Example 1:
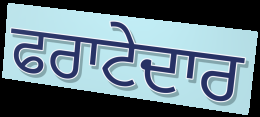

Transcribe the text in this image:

ਫਰਾਟੇਦਾਰ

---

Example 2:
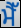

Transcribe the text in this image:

ਮੈੱ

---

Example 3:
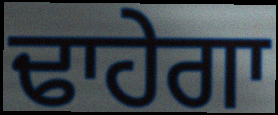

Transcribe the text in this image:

ਢਾਹੇਗਾ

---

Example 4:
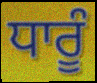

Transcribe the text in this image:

ਧਾਰੂੰ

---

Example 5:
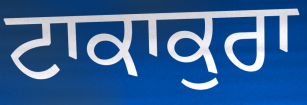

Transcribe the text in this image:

ਟਾਕਾਕੁਰਾ